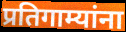
प्रतिगाम्यांना